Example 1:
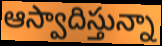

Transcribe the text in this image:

ఆస్వాదిస్తున్నా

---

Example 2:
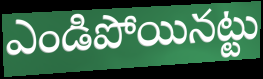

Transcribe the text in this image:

ఎండిపోయినట్టు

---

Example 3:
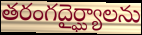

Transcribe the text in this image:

తరంగదైర్ఘ్యాలను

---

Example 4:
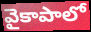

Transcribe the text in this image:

వైకాపాలో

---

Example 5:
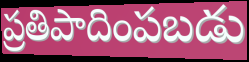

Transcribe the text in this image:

ప్రతిపాదింపబడు